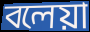
বলেয়া